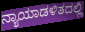
ನ್ಯಾಯಾಡಳಿತದಲ್ಲಿ